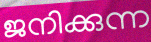
ജനിക്കുന്ന